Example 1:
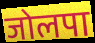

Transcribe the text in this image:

जोलपा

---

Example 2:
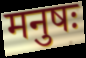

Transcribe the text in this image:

मनुषः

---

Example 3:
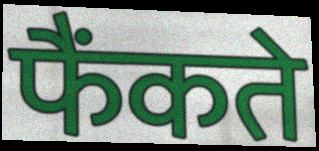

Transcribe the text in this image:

फैंकते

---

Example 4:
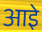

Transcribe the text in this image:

आइे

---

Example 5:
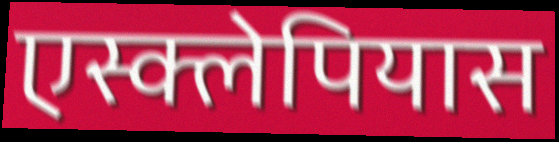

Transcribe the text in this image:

एस्क्लेपियास